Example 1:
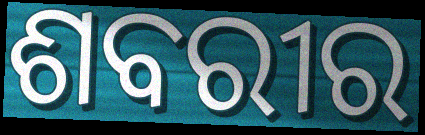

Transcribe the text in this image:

ଶବରୀର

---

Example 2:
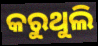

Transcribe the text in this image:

କରୁଥୁଲି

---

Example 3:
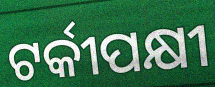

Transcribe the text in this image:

ଟର୍କୀପକ୍ଷୀ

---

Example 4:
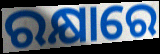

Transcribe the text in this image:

ରକ୍ଷାରେ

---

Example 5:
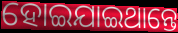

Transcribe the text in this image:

ହୋଇଯାଇଥାନ୍ତେ